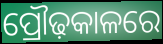
ପ୍ରୌଢ଼କାଳରେ